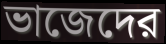
ভাজেদের